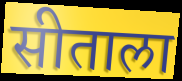
सीताला